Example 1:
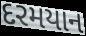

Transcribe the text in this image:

દરમયાન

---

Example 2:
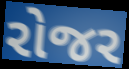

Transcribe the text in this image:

રોજર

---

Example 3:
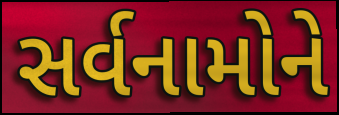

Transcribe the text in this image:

સર્વનામોને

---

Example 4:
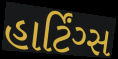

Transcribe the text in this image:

હાર્ટિંગ્સ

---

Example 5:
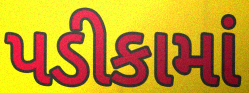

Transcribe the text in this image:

પડીકામાં